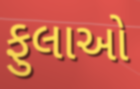
ફુલાઓ